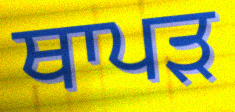
ਥਾਪੜ